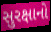
સુરક્ષાનો